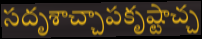
సదృశాచ్చాపకృష్టాచ్చ